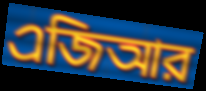
এজিআর